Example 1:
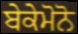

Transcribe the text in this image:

ਬੇਕੇਮੋਨੋ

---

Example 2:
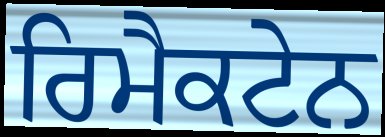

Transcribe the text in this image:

ਰਿਮੈਕਟੇਨ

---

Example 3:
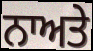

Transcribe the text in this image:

ਨਾਅਤੇ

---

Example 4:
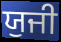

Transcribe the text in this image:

ਯੁਜੀ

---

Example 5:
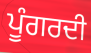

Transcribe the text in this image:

ਪੂੰਗਰਦੀ